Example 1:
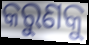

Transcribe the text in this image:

କରୁଣକୁ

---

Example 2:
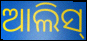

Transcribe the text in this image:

ଆଲିସ୍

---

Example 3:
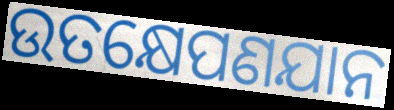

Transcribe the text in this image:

ଉତକ୍ଷେପଣଯାନ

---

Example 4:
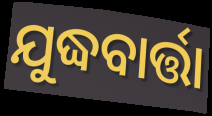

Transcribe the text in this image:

ଯୁଦ୍ଧବାର୍ତ୍ତା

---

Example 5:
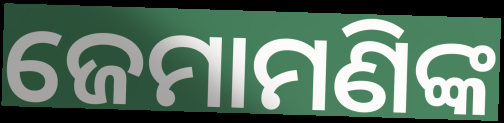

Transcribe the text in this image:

ଜେମାମଣିଙ୍କ